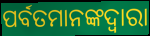
ପର୍ବତମାନଙ୍କଦ୍ଵାରା